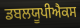
ਡਬਲਯੂਪੀਐਕਸ